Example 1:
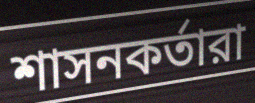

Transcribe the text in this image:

শাসনকর্তারা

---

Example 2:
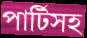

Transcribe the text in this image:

পার্টিসহ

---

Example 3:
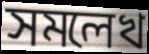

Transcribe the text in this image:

সমলেখ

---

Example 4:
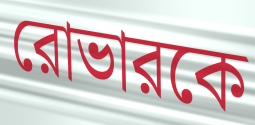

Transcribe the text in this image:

রোভারকে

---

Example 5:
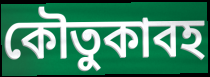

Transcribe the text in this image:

কৌতুকাবহ